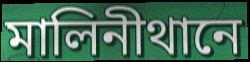
মালিনীথানে